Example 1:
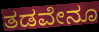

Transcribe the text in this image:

ತಡವೇನೂ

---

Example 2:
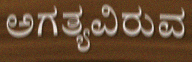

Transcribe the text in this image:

ಅಗತ್ಯವಿರುವ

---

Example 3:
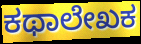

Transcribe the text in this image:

ಕಥಾಲೇಖಕ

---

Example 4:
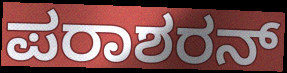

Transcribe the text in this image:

ಪರಾಶರನ್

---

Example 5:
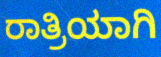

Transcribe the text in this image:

ರಾತ್ರಿಯಾಗಿ